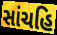
સાંચહિ